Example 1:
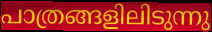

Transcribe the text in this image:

പാത്രങ്ങളിലിടുന്നു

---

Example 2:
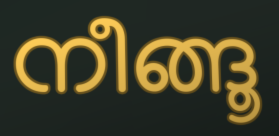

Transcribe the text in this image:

നീങ്ങൂ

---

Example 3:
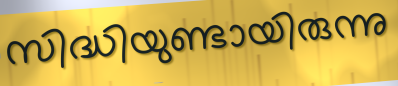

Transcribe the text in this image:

സിദ്ധിയുണ്ടായിരുന്നു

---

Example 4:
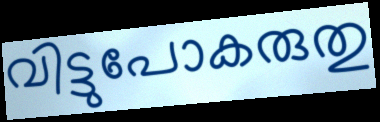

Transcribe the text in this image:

വിട്ടുപോകരുതു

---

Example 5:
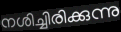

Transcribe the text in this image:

നശിച്ചിരിക്കുന്നു